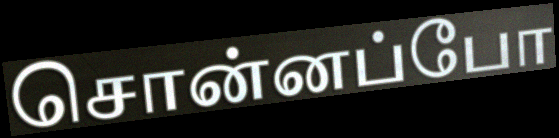
சொன்னப்போ